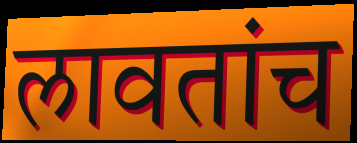
लावतांच